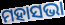
ମହାସଭା